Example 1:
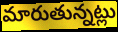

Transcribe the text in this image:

మారుతున్నట్లు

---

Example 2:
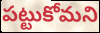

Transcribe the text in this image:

పట్టుకోమని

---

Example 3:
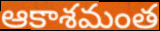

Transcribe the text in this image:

ఆకాశమంత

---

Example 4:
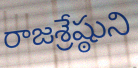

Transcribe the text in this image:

రాజశ్రేష్ఠుని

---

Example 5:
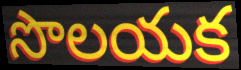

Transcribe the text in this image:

సొలయక